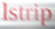
lstrip